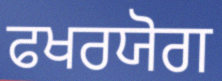
ਫਖਰਯੋਗ